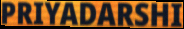
PRIYADARSHI